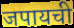
जपायची